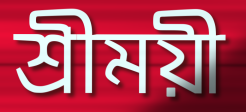
শ্রীময়ী